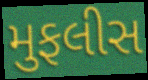
મુફલીસ